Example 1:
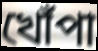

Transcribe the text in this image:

খোঁপা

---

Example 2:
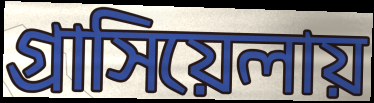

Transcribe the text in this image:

গ্রাসিয়েলায়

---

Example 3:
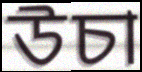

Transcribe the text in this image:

উচা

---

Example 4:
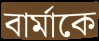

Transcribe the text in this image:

বার্মাকে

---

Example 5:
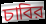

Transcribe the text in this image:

চাবির